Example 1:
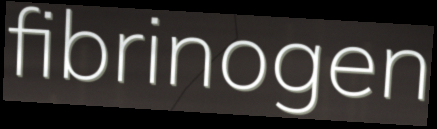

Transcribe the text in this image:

fibrinogen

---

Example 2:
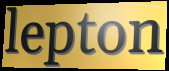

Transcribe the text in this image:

lepton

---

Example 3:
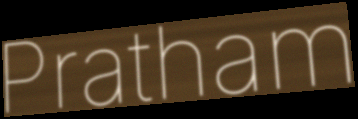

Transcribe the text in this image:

Pratham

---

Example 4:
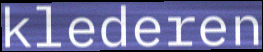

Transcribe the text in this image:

klederen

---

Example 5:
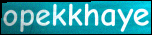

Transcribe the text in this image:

opekkhaye